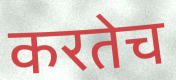
करतेच